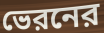
ভেরনের